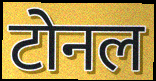
टोनल